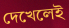
দেখেলেই